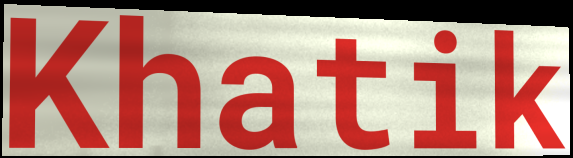
Khatik